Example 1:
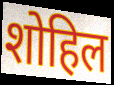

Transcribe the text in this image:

शोहिल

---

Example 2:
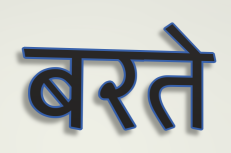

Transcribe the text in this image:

बरते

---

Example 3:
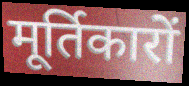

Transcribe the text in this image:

मूर्तिकारों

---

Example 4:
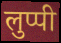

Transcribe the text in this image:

लुप्पी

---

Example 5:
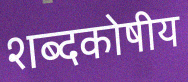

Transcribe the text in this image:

शब्दकोषीय